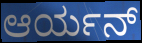
ಆರ್ಯನ್